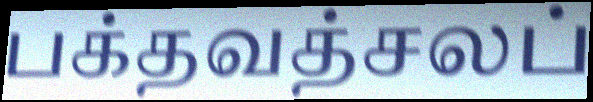
பக்தவத்சலப்